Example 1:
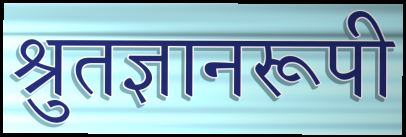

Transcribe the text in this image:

श्रुतज्ञानरूपी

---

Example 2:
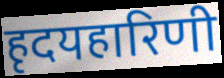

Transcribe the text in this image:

हृदयहारिणी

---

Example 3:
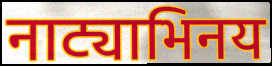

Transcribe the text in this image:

नाट्याभिनय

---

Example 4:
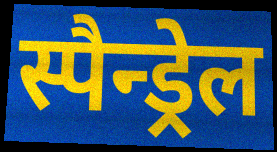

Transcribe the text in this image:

स्पैन्ड्रेल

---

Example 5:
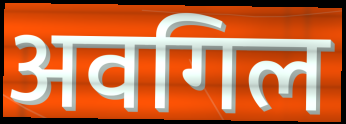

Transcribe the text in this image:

अवगिल